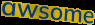
awsome